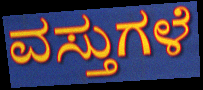
ವಸ್ತುಗಳೆ